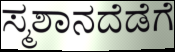
ಸ್ಮಶಾನದೆಡೆಗೆ